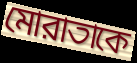
মোরাতাকে